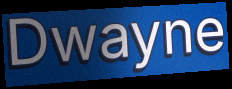
Dwayne